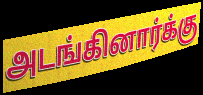
அடங்கினார்க்கு